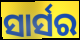
ସାର୍ସର